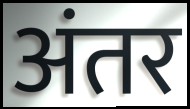
अंतर